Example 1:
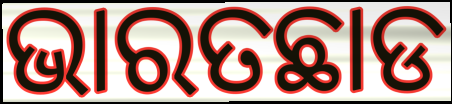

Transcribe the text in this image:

ଭାରତଛାଡ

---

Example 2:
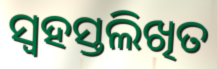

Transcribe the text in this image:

ସ୍ୱହସ୍ତଲିଖିତ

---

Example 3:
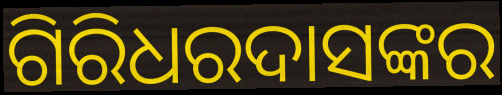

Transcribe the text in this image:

ଗିରିଧରଦାସଙ୍କର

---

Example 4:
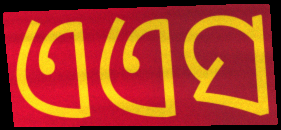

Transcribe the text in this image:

ଏଏସ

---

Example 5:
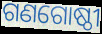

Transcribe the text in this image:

ଗଣଗୋଷ୍ଠୀ